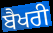
ਬੈਖਰੀ